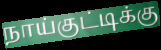
நாய்குட்டிக்கு